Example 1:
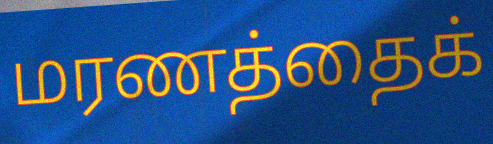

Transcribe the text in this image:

மரணத்தைக்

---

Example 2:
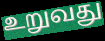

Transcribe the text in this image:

உறுவது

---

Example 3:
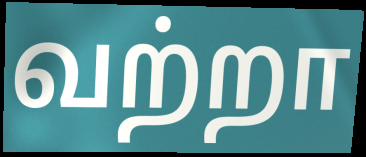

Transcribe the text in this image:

வற்றா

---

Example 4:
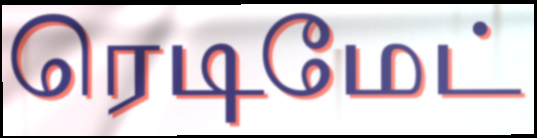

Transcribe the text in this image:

ரெடிமேட்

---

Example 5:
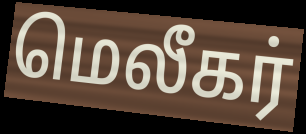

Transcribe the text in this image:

மெலீகர்